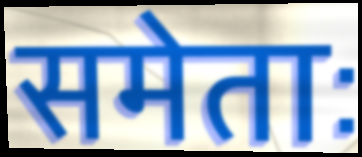
समेताः